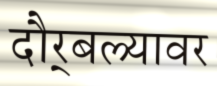
दौर्बल्यावर